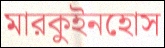
মারকুইনহোস